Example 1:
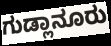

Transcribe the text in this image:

ಗುಡ್ಲಾನೂರು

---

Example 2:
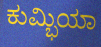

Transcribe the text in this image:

ಕುಮ್ಭಿಯಾ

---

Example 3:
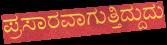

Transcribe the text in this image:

ಪ್ರಸಾರವಾಗುತ್ತಿದ್ದುದು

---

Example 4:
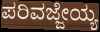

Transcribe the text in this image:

ಪರಿವಜ್ಜೇಯ್ಯ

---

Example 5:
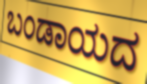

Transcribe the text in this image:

ಬಂಡಾಯದ